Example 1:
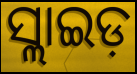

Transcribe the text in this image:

ସ୍ଲାଇଡ଼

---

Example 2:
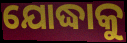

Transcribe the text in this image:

ଯୋଦ୍ଧାକୁ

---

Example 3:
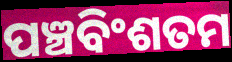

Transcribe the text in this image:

ପଞ୍ଚବିଂଶତମ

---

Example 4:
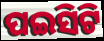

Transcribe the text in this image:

ପଇସିଟି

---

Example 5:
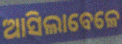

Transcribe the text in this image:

ଆସିଲାବେଳେ